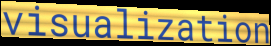
visualization